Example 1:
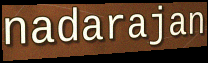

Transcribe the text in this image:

nadarajan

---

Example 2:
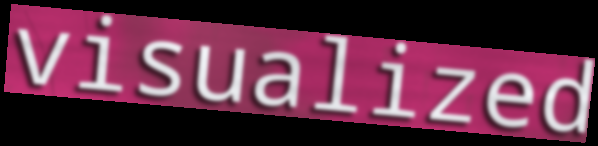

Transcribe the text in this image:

visualized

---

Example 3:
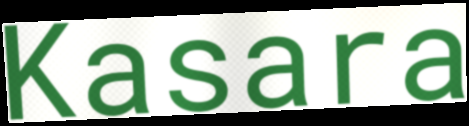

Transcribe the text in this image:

Kasara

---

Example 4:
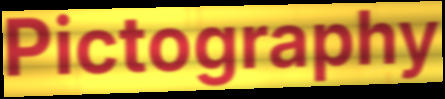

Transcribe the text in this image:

Pictography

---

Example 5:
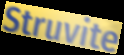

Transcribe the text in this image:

Struvite